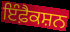
ਇੰਫ਼ੈਕਸ਼ਨ